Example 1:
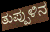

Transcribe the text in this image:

ತುಪ್ಪುಳಿನ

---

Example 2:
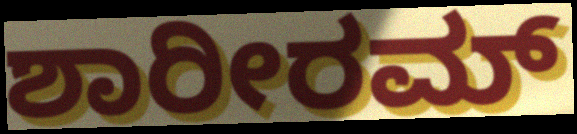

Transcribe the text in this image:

ಶಾರೀರಮ್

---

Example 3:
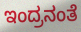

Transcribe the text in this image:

ಇಂದ್ರನಂತೆ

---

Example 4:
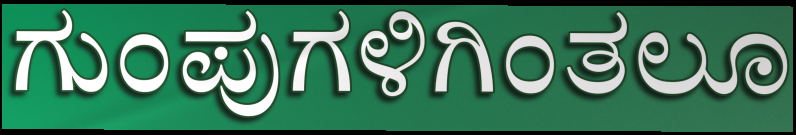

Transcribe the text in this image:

ಗುಂಪುಗಳಿಗಿಂತಲೂ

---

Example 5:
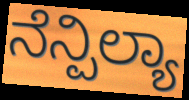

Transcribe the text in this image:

ನೆನ್ಪಿಲ್ಯಾ